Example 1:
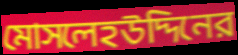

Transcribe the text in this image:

মোসলেহউদ্দিনের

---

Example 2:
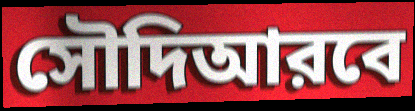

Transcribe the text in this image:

সৌদিআরবে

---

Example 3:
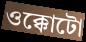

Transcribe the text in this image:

ওক্কোটো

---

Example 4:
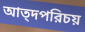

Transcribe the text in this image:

আত্দপরিচয়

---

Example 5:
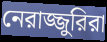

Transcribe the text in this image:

নেরাজ্জুরিরা